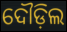
ଦୌଡ଼ିଲ